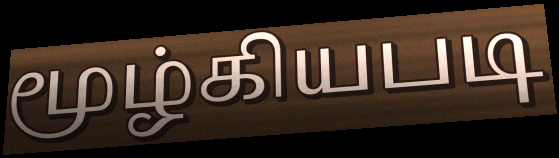
மூழ்கியபடி